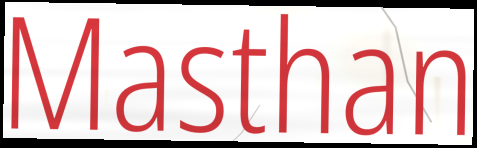
Masthan